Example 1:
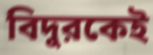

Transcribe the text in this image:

বিদুরকেই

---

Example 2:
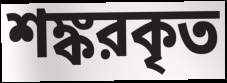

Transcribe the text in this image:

শঙ্করকৃত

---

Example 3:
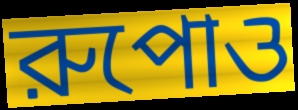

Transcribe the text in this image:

রুপোও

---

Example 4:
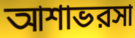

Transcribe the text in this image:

আশাভরসা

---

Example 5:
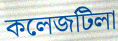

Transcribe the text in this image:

কলেজটিলা